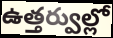
ఉత్తర్వుల్లో